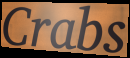
Crabs